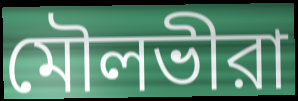
মৌলভীরা